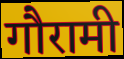
गौरामी